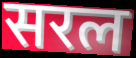
सरल